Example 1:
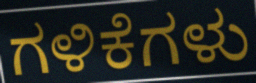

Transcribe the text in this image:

ಗಳಿಕೆಗಳು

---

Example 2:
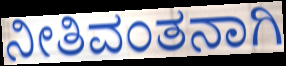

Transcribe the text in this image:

ನೀತಿವಂತನಾಗಿ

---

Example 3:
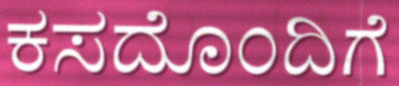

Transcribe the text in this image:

ಕಸದೊಂದಿಗೆ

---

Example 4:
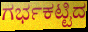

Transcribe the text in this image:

ಗರ್ಭಕಟ್ಟಿದ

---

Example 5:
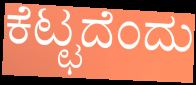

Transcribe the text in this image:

ಕೆಟ್ಟದೆಂದು